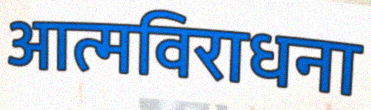
आत्मविराधना